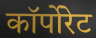
कॉर्पोरेट